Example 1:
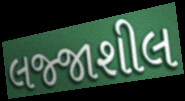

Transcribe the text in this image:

લજ્જાશીલ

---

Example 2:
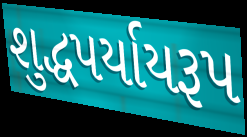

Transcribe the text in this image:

શુદ્ધપર્યાયરૂપ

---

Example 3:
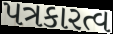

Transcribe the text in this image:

પત્રકારત્વ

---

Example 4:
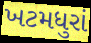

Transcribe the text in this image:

ખટમધુરાં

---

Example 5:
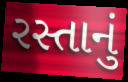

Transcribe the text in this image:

રસ્તાનું